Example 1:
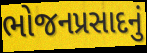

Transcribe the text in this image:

ભોજનપ્રસાદનું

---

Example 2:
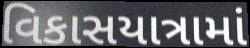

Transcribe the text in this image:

વિકાસયાત્રામાં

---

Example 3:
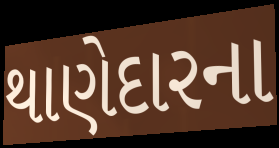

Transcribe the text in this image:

થાણેદારના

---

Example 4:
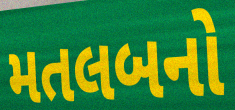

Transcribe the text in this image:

મતલબનો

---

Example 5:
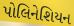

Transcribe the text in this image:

પોલિનેશિયન